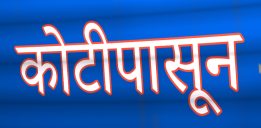
कोटीपासून